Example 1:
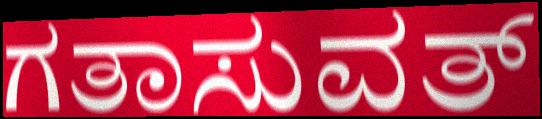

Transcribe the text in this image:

ಗತಾಸುವತ್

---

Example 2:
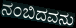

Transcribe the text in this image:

ನಂಬಿದವನು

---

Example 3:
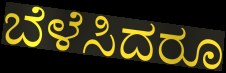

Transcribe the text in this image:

ಬೆಳೆಸಿದರೂ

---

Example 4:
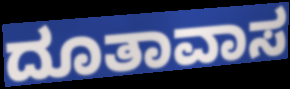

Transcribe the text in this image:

ದೂತಾವಾಸ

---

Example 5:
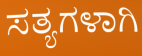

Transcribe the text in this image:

ಸತ್ಯಗಳಾಗಿ